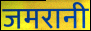
जमरानी